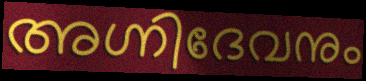
അഗ്നിദേവനും